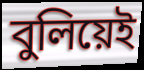
বুলিয়েই